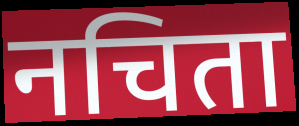
नचिता